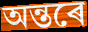
অন্তৰে